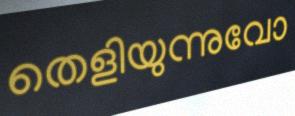
തെളിയുന്നുവോ